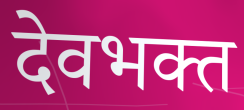
देवभक्त